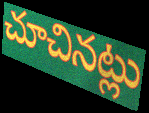
చూచినట్లు